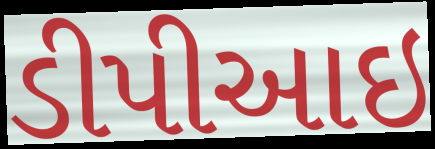
ડીપીઆઇ